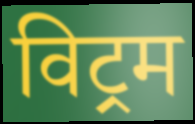
विट्रम